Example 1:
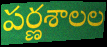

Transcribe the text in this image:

పర్ణశాలల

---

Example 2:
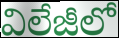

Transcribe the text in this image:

విలేజీలో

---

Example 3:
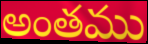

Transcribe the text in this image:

అంతము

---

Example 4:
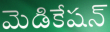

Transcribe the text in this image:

మెడికేషన్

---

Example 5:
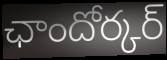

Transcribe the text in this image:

ఛాందోర్కర్